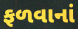
ફળવાનાં